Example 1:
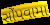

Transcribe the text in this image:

સોંપવામા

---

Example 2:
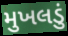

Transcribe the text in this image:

મુખલડું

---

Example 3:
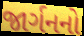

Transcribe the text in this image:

જાર્ગનનો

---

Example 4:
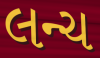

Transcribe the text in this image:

લન્ચ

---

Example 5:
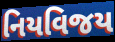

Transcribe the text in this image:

નિયવિજય